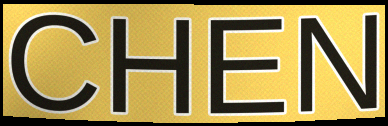
CHEN